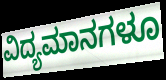
ವಿದ್ಯಮಾನಗಳೂ